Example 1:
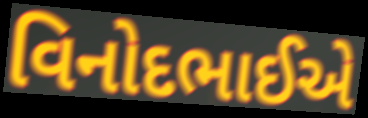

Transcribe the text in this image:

વિનોદભાઈએ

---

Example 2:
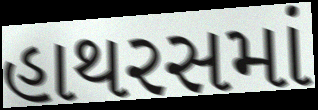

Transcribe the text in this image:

હાથરસમાં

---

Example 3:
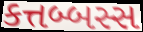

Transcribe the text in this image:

કત્તબ્બસ્સ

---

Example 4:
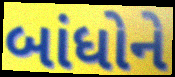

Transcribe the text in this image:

બાંધોને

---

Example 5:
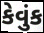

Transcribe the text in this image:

કેવુંક